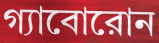
গ্যাবোরোন